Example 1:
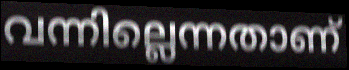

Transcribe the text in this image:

വന്നില്ലെന്നതാണ്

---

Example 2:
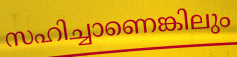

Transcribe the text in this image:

സഹിച്ചാണെങ്കിലും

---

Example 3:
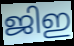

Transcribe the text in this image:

ജിഇ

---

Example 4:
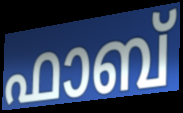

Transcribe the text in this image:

ഫാബ്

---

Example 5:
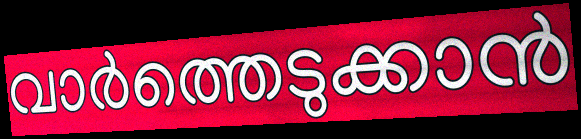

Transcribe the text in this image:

വാർത്തെടുക്കാൻ